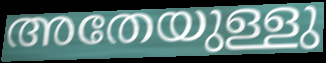
അതേയുള്ളു